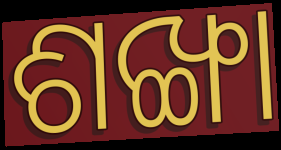
ଶଙ୍ଖା